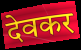
देवकर